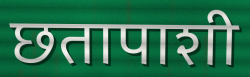
छतापाशी